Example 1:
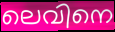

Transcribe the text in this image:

ലെവിനെ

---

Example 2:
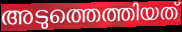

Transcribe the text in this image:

അടുത്തെത്തിയത്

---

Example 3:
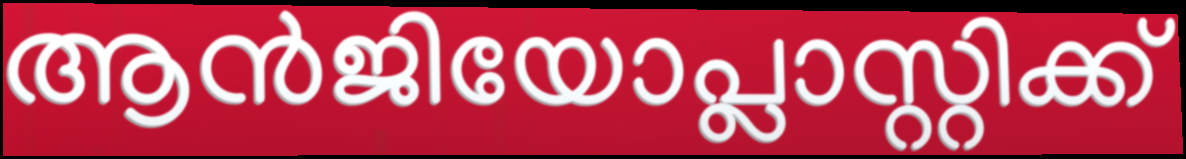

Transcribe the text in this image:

ആൻജിയോപ്ലാസ്റ്റിക്ക്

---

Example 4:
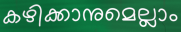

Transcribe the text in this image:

കഴിക്കാനുമെല്ലാം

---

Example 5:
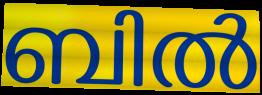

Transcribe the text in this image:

ബിൽ